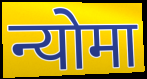
न्योमा